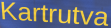
Kartrutva